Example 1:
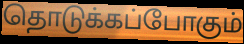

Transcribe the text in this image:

தொடுக்கப்போகும்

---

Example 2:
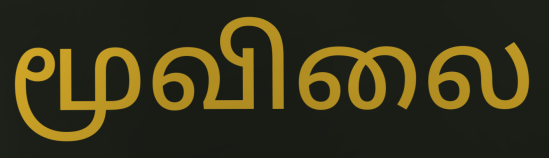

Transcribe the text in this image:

மூவிலை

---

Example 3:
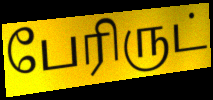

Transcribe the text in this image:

பேரிருட்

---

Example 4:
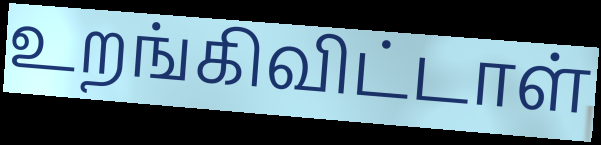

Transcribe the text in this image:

உறங்கிவிட்டாள்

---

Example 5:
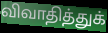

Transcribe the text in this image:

விவாதித்துக்